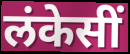
लंकेसीं